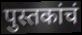
पुस्तकांचं